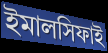
ইমালসিফাই